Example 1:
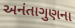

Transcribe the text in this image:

અનંતાગુણના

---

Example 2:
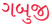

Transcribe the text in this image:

ગબુજી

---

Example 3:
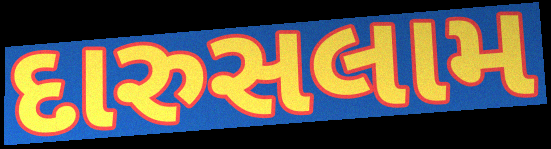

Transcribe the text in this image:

દારુસલામ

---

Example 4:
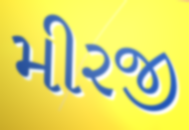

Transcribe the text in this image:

મીરજી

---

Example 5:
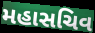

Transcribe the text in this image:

મહાસચિવ